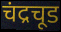
चंद्रचूड